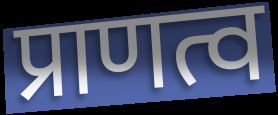
प्राणत्व